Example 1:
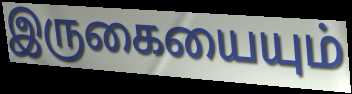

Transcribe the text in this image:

இருகையையும்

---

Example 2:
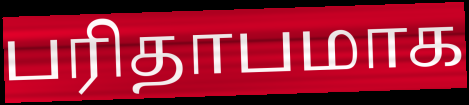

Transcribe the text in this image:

பரிதாபமாக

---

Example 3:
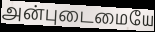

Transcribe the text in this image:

அன்புடைமையே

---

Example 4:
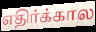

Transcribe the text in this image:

எதிர்க்கால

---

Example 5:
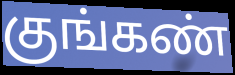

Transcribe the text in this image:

குங்கண்